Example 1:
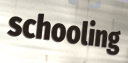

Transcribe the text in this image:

schooling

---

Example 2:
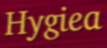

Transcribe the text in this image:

Hygiea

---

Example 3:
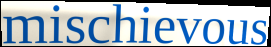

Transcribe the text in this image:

mischievous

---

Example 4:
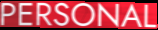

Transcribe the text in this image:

PERSONAL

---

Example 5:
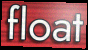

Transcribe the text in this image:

float